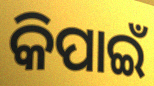
କିପାଇଁ